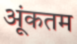
अूंकतम